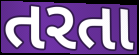
તરતા